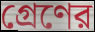
গ্রেণের